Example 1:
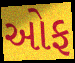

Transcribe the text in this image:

ઓફ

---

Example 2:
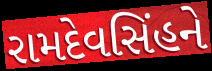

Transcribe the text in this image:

રામદેવસિંહને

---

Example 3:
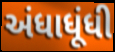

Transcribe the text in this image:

અંધાધૂંધી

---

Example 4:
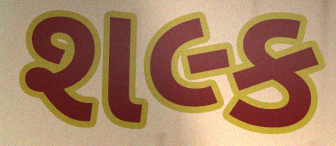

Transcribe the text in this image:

શલ્ક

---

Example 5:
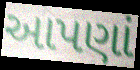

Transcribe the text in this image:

આપણાં